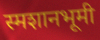
स्मशानभूमी